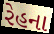
રેહના